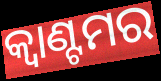
କ୍ୱାଣ୍ଟମର